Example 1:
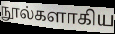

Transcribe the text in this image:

நூல்களாகிய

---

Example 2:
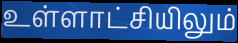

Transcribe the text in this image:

உள்ளாட்சியிலும்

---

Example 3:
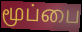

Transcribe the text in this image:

மூப்பை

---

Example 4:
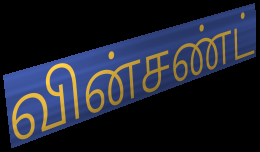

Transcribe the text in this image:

வின்சண்ட்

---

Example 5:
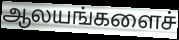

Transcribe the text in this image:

ஆலயங்களைச்